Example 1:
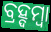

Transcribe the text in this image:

ବ୍ରହ୍ଦମ୍ବା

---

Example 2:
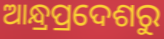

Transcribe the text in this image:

ଆନ୍ଧ୍ରପ୍ରଦେଶରୁ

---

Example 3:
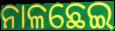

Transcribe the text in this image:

ନାଳଛେଇ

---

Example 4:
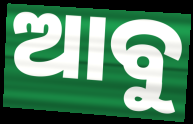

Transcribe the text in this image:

ଆବୁ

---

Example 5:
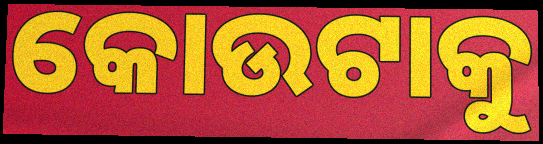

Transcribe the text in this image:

କୋଉଟାକୁ